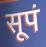
सूपं